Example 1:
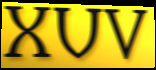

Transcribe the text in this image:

XUV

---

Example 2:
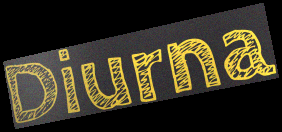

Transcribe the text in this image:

Diurna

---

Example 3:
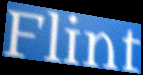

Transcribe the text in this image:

Flint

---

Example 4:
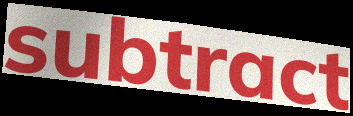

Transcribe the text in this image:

subtract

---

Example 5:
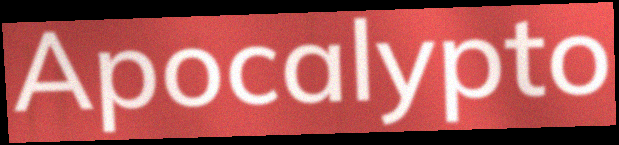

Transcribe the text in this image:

Apocalypto